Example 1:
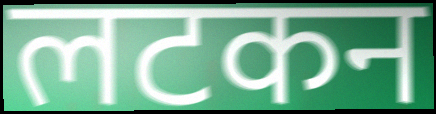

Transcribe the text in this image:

लटकन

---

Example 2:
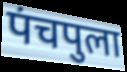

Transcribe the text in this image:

पंचपुला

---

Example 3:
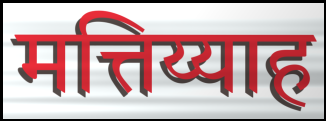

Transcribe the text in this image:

मत्तिय्याह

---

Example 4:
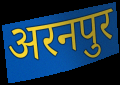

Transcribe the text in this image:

अरनपुर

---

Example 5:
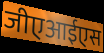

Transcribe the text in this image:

जीएआईएस